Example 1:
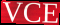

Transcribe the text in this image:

VCE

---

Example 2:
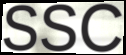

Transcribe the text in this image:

SSC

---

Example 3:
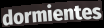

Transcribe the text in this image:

dormientes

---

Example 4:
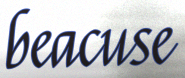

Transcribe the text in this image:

beacuse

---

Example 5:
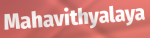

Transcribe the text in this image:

Mahavithyalaya